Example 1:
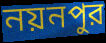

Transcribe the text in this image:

নয়নপুর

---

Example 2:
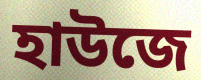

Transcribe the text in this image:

হাউজে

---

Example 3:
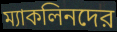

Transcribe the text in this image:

ম্যাকলিনদের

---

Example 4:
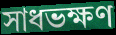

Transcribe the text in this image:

সাধভক্ষণ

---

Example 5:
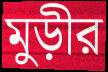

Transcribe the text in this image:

মুড়ীর